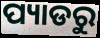
ପ୍ୟାଡରୁ